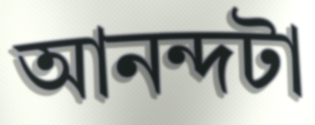
আনন্দটা